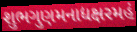
શુભગુણમનાદ્યક્ષરમહં